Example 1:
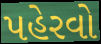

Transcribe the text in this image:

પહેરવો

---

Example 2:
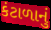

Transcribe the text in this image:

કંટાળાનું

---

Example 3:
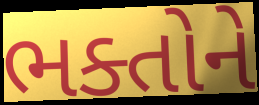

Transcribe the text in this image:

ભક્તોને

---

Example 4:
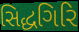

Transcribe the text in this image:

સિદ્ધગિરિ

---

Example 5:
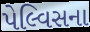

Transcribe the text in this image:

પેલ્વિસના